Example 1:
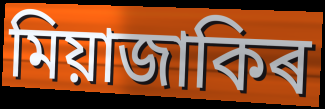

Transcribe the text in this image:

মিয়াজাকিৰ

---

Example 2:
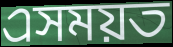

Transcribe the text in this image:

এসময়ত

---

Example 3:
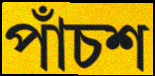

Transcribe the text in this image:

পাঁচশ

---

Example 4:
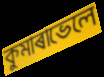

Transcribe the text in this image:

কুমাৰাভেলে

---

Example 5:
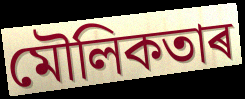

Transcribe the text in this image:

মৌলিকতাৰ